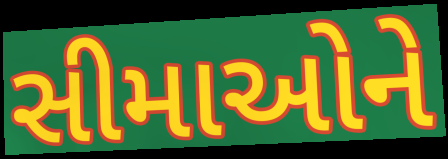
સીમાઓને